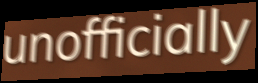
unofficially